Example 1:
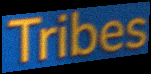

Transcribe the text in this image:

Tribes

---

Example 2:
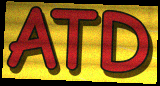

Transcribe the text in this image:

ATD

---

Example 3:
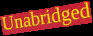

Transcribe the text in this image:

Unabridged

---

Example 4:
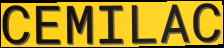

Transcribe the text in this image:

CEMILAC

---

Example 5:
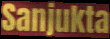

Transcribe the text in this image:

Sanjukta